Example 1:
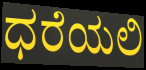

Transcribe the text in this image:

ಧರೆಯಲಿ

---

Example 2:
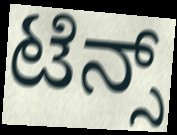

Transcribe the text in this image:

ಟೆನ್ಸ್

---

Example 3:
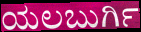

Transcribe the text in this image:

ಯಲಬುರ್ಗಿ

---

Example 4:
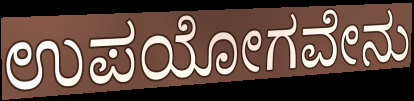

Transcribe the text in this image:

ಉಪಯೋಗವೇನು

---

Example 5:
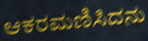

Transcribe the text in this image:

ಆಕರಮಣಿಸಿದನು